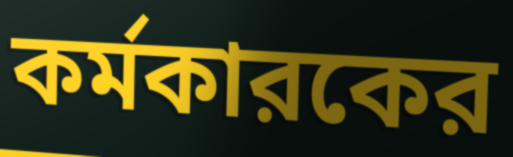
কর্মকারকের